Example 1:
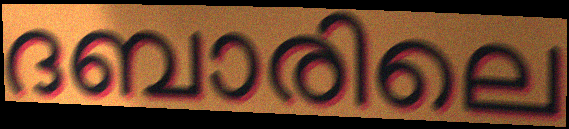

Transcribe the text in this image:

ദബാരിലെ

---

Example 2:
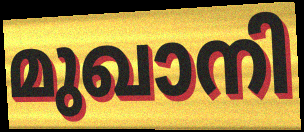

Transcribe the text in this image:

മുഖാനി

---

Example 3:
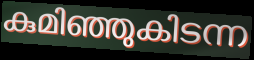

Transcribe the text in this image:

കുമിഞ്ഞുകിടന്ന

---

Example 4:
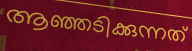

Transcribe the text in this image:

ആഞ്ഞടിക്കുന്നത്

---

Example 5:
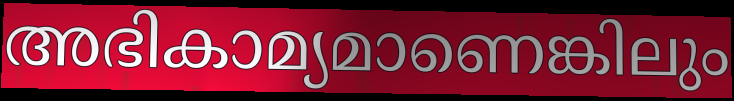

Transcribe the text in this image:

അഭികാമ്യമാണെങ്കിലും